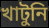
খাটুনি